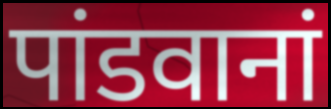
पांडवानां